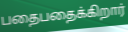
பதைபதைக்கிறார்